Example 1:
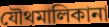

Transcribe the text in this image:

যৌথমালিকানা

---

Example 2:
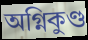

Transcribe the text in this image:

অগ্নিকুণ্ড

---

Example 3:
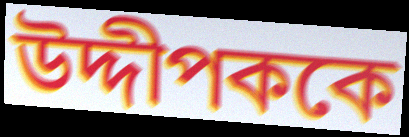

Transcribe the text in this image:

উদ্দীপককে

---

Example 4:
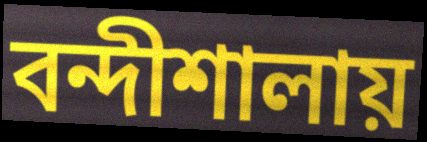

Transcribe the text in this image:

বন্দীশালায়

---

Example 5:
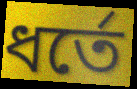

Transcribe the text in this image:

ধর্তে